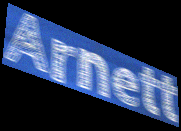
Arnett